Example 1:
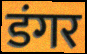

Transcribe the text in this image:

डंगर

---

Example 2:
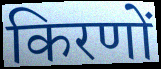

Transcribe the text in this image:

किरणों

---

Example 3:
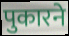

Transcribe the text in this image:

पुकारने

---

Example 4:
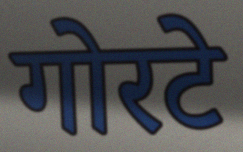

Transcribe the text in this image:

गोरटे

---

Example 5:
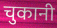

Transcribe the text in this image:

चुकानी